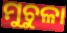
ମୁଚୁଳା